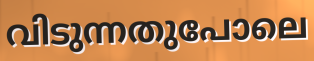
വിടുന്നതുപോലെ